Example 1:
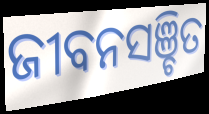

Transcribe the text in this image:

ଜୀବନସଞ୍ଚିତ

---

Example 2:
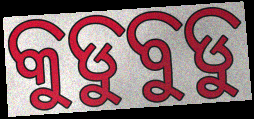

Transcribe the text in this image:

କୁଡୁବୁଡୁ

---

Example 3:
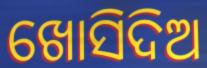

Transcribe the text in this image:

ଖୋସିଦିଅ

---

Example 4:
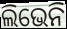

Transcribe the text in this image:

ଲିଭେନି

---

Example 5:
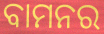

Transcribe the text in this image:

ବାମନର